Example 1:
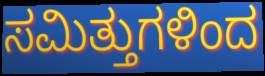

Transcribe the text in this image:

ಸಮಿತ್ತುಗಳಿಂದ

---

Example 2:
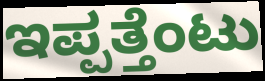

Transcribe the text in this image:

ಇಪ್ಪತ್ತೆಂಟು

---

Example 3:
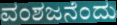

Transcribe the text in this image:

ವಂಶಜನೆಂದು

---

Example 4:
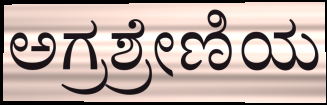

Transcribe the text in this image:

ಅಗ್ರಶ್ರೇಣಿಯ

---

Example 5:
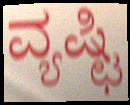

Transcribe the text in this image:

ವ್ಯಷ್ಟಿ